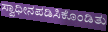
ಸ್ವಾಧೀನಪಡಿಸಿಕೊಂಡಿತು